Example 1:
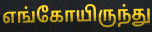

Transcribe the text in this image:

எங்கோயிருந்து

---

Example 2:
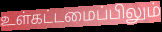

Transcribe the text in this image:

உள்கட்டமைப்பிலும்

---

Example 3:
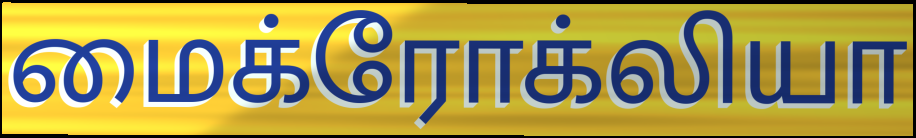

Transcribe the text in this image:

மைக்ரோக்லியா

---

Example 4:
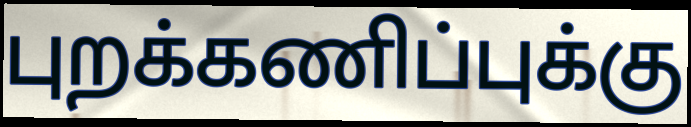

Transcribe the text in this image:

புறக்கணிப்புக்கு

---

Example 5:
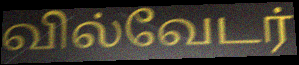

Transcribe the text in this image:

வில்வேடர்